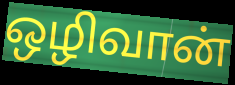
ஒழிவான்